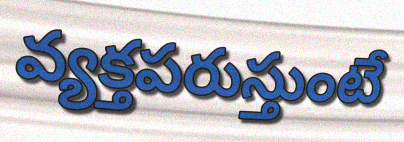
వ్యక్తపరుస్తుంటే